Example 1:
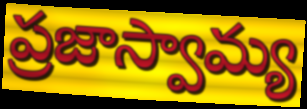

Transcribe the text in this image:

ప్రజాస్వామ్య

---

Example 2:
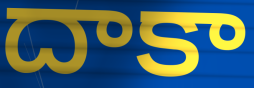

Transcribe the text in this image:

దాకా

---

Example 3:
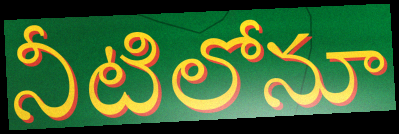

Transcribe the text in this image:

నీటిలోనూ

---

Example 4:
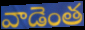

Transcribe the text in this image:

వాడెంత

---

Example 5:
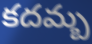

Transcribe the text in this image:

కదమ్బ